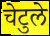
चेटुले